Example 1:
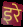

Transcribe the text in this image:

इरे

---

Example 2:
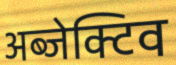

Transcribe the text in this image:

अब्जेक्टिव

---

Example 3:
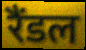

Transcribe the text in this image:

रैंडल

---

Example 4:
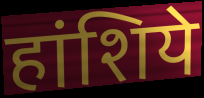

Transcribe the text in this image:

हांशिये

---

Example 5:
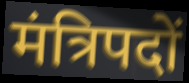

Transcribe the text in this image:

मंत्रिपदों